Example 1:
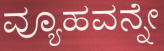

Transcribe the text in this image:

ವ್ಯೂಹವನ್ನೇ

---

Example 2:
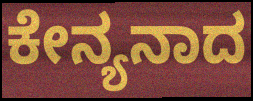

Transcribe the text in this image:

ಕೇನ್ಯನಾದ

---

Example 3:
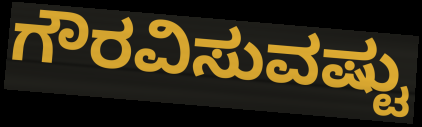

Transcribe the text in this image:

ಗೌರವಿಸುವಷ್ಟು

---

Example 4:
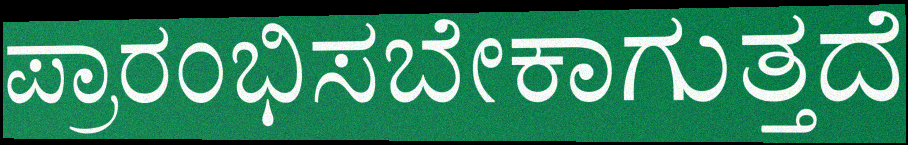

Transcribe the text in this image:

ಪ್ರಾರಂಭಿಸಬೇಕಾಗುತ್ತದೆ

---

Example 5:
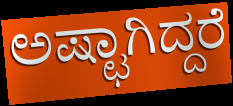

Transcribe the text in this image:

ಅಷ್ಟಾಗಿದ್ದರೆ